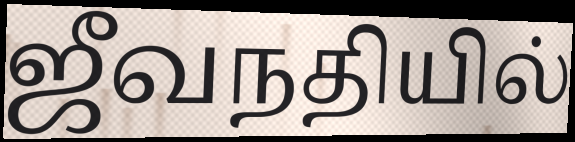
ஜீவநதியில்